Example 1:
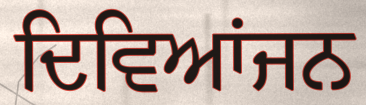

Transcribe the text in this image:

ਦਿਵਿਆਂਜਨ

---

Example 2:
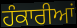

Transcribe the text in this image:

ਹੰਕਾਰੀਆਂ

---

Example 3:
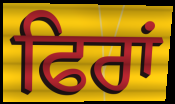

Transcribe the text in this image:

ਫਿਰਾਂ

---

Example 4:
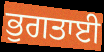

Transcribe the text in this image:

ਭੁਗਤਾਈ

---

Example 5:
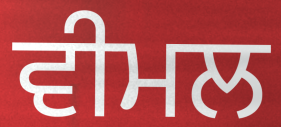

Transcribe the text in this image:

ਵੀਮਲ